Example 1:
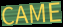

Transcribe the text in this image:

CAME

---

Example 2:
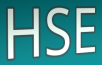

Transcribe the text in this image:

HSE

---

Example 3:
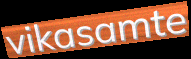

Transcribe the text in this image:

vikasamte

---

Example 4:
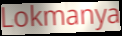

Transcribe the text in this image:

Lokmanya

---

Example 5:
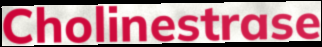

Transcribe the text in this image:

Cholinestrase